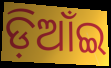
ଡ଼ିଆଁଇ